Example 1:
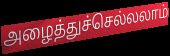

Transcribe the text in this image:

அழைத்துச்செல்லலாம்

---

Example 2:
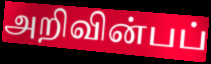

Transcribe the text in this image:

அறிவின்பப்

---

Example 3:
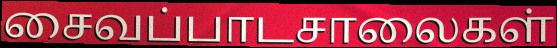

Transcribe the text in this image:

சைவப்பாடசாலைகள்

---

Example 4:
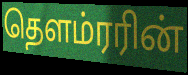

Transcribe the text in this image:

தௌம்ரரின்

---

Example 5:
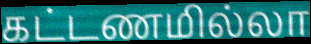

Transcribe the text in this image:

கட்டணமில்லா